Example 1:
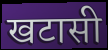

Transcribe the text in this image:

खटासी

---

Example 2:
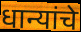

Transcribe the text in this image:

धान्यांचे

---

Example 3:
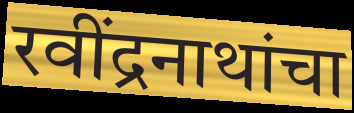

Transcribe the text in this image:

रवींद्रनाथांचा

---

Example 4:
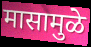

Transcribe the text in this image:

मासामुळे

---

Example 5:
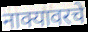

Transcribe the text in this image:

नाक्यावरचे